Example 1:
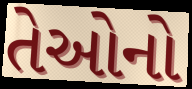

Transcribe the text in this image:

તેઓનો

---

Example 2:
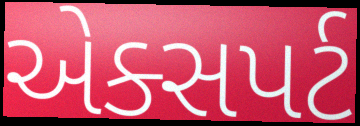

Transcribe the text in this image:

એક્સપર્ટ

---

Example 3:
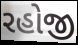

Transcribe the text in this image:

રહોજી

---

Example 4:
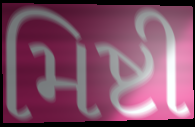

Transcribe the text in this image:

મિષ્ટી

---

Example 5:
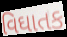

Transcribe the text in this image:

વિઘાતક